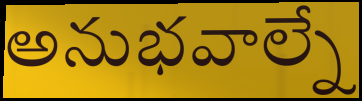
అనుభవాల్నే